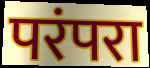
परंपरा